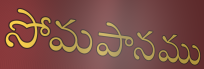
సోమపానము